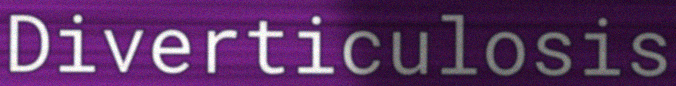
Diverticulosis